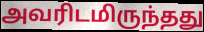
அவரிடமிருந்தது